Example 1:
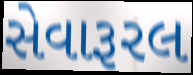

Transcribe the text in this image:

સેવારૂરલ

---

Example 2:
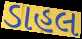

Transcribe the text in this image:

ડાહલ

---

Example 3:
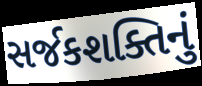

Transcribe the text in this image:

સર્જકશક્તિનું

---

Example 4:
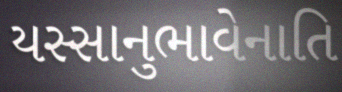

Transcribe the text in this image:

યસ્સાનુભાવેનાતિ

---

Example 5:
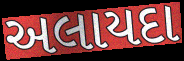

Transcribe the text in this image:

અલાયદા